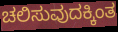
ಚಲಿಸುವುದಕ್ಕಿಂತ